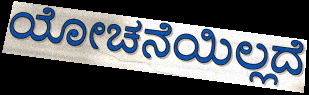
ಯೋಚನೆಯಿಲ್ಲದೆ